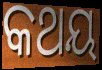
କଥୟ